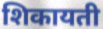
शिकायती